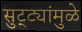
सुट्ट्यांमुळे